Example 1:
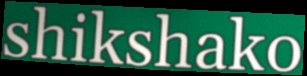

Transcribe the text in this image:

shikshako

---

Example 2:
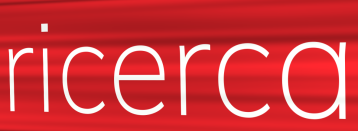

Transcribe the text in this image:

ricerca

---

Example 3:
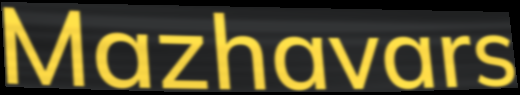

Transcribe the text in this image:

Mazhavars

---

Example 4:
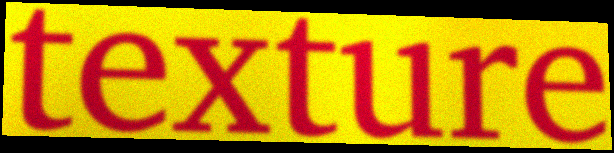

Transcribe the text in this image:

texture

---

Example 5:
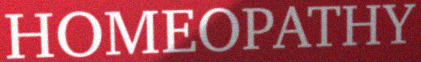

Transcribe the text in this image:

HOMEOPATHY